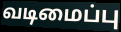
வடிமைப்பு